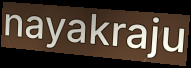
nayakraju